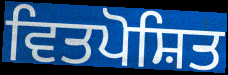
ਵਿਤਪੋਸ਼ਿਤ